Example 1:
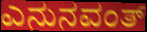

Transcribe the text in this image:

ಎನುನವಂತ್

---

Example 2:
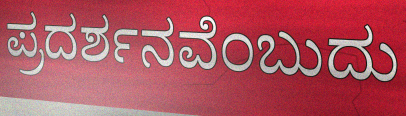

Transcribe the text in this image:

ಪ್ರದರ್ಶನವೆಂಬುದು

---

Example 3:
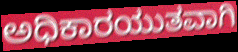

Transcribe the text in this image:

ಅಧಿಕಾರಯುತವಾಗಿ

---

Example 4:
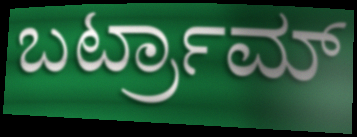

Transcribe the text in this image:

ಬರ್ಟ್ರಾಮ್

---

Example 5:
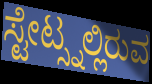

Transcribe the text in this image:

ಸ್ಟೇಟ್ಸ್ನಲ್ಲಿರುವ